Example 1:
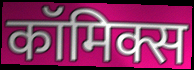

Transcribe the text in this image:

कॉमिक्स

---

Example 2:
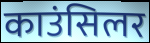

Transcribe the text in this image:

काउंसिलर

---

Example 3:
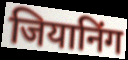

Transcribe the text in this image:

जियानिंग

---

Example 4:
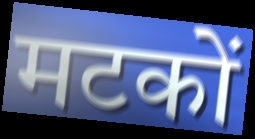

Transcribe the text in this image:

मटकों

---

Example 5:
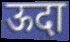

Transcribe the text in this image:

ऊदा